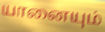
யானையும்